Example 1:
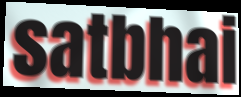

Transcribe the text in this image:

satbhai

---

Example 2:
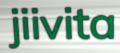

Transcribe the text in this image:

jiivita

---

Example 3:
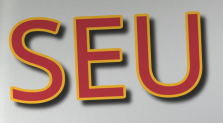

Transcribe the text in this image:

SEU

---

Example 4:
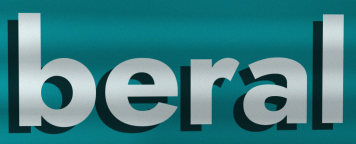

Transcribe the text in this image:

beral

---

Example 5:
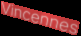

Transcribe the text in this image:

Vincennes